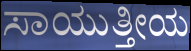
ಸಾಯುತ್ತೀಯ